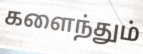
களைந்தும்